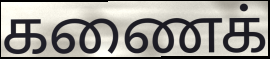
கணைக்